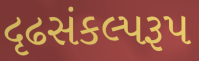
દૃઢસંકલ્પરૂપ